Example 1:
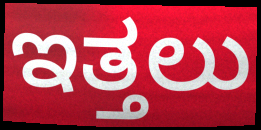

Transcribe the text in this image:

ಇತ್ತಲು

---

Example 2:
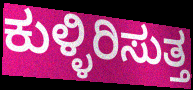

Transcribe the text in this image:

ಕುಳ್ಳಿರಿಸುತ್ತ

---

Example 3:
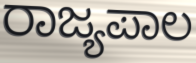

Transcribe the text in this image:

ರಾಜ್ಯಪಾಲ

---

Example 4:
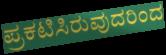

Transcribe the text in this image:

ಪ್ರಕಟಿಸಿರುವುದರಿಂದ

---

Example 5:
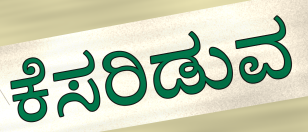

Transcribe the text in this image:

ಕೆಸರಿಡುವ